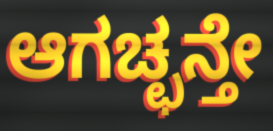
ಆಗಚ್ಛನ್ತೇ